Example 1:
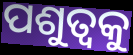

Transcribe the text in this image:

ପଶୁତ୍ୱକୁ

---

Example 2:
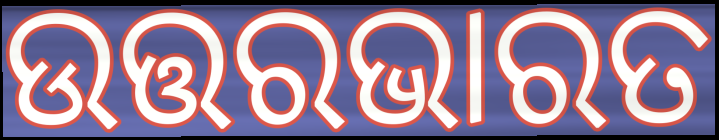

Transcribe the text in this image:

ଉତ୍ତରଭାରତ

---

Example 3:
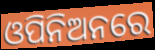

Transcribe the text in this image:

ଓପିନିଅନରେ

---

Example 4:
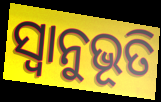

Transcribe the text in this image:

ସ୍ଵାନୁଭୂତି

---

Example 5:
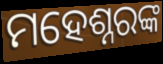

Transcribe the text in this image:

ମହେଶ୍ନରଙ୍କ